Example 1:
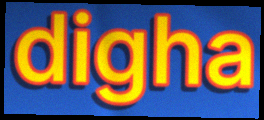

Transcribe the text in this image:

digha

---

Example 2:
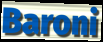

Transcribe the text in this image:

Baroni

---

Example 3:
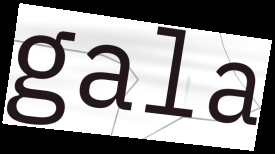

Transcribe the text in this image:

gala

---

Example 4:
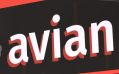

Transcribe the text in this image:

avian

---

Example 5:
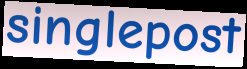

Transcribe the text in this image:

singlepost